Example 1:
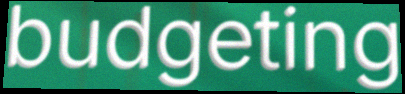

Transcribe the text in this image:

budgeting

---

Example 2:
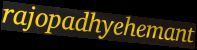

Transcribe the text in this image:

rajopadhyehemant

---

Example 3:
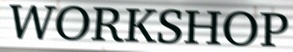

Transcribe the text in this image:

WORKSHOP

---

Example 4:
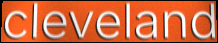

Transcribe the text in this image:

cleveland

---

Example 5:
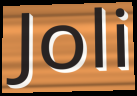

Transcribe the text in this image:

Joli